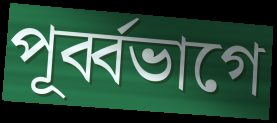
পূর্ব্বভাগে